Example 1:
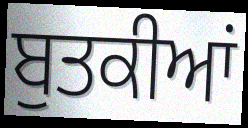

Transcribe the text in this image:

ਬੁਤਕੀਆਂ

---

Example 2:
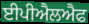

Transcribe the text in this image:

ਈਪੀਐਲਐਫ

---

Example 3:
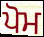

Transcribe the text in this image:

ਪੋਮ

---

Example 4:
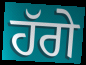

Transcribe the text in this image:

ਹੱਗੇ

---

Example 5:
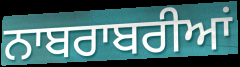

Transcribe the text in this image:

ਨਾਬਰਾਬਰੀਆਂ